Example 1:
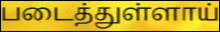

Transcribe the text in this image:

படைத்துள்ளாய்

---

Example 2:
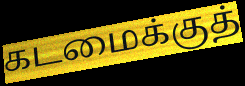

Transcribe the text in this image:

கடமைக்குத்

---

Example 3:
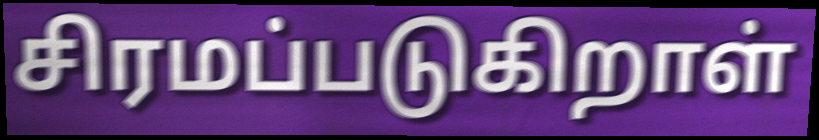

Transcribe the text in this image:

சிரமப்படுகிறாள்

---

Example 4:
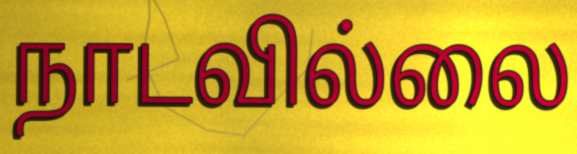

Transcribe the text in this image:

நாடவில்லை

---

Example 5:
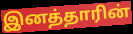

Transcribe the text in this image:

இனத்தாரின்